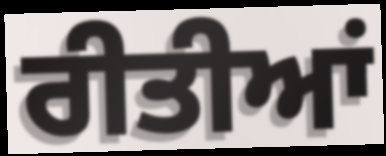
ਰੀਤੀਆਂ